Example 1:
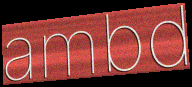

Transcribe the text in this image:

ambd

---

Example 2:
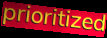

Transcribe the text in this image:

prioritized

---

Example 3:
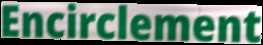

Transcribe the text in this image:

Encirclement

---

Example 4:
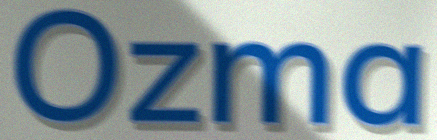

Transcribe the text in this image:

Ozma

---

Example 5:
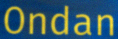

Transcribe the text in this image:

Ondan